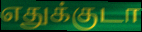
எதுக்குடா